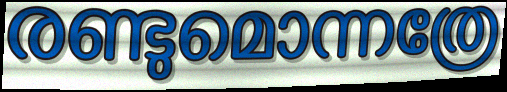
രണ്ടുമൊന്നത്രേ